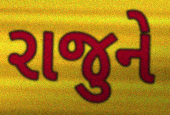
રાજુને